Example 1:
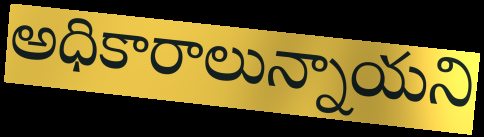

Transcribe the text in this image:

అధికారాలున్నాయని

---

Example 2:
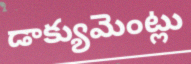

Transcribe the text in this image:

డాక్యుమెంట్లు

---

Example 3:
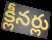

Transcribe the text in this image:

క్లీనర్లు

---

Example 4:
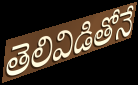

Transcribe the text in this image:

తెలివిడితోనే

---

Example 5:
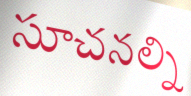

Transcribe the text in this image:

సూచనల్ని